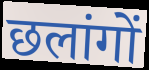
छलांगों